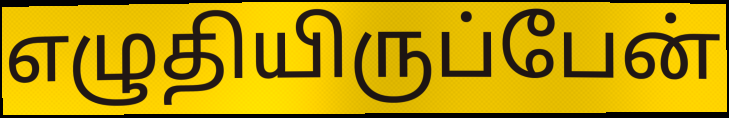
எழுதியிருப்பேன்